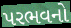
પરભવનો